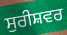
ਸੁਰੀਸ਼ਵਰ